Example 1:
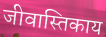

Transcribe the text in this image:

जीवास्तिकाय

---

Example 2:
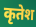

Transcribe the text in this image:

कृतेश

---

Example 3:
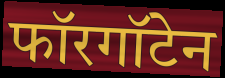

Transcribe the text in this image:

फॉरगॉटेन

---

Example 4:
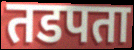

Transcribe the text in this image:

तडपता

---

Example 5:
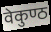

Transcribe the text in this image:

वेकुण्ठ